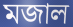
মজাল